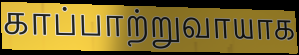
காப்பாற்றுவாயாக